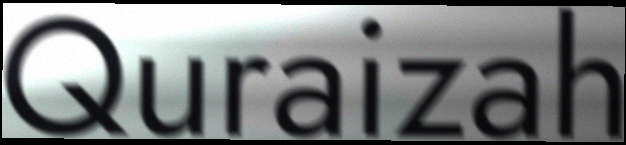
Quraizah